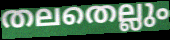
തലതെല്ലും